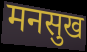
मनसुख